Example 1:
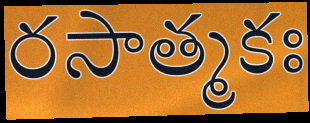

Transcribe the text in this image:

రసాత్మకః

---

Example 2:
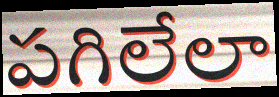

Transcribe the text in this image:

పగిలేలా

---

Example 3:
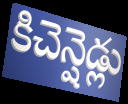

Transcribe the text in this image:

కిచెన్షెడ్లు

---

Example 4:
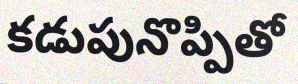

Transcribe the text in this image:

కడుపునొప్పితో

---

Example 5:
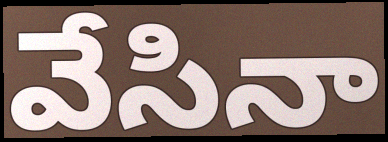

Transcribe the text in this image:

వేసినా